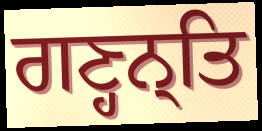
ਗਣ੍ਹਨ੍ਤਿ